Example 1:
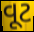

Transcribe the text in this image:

વૂટ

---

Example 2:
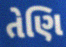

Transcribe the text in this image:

તેણિ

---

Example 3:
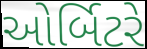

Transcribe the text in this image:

ઓર્બિટરે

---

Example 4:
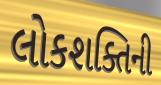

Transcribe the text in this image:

લોકશક્તિની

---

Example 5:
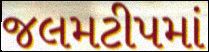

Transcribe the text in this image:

જલમટીપમાં